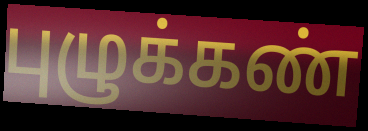
புழுக்கண்